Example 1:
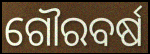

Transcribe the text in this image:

ଗୌରବର୍ଷ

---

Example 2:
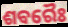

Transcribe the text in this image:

ଶବରୈଃ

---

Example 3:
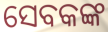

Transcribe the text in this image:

ସେବକଙ୍କ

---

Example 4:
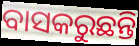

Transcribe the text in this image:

ବାସକରୁଛନ୍ତି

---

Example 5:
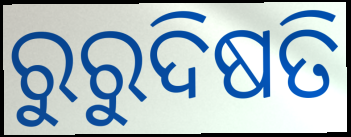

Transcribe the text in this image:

ରୁରୁଦିଷତି